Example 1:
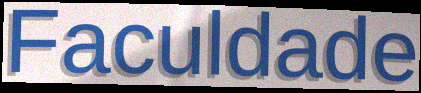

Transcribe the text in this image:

Faculdade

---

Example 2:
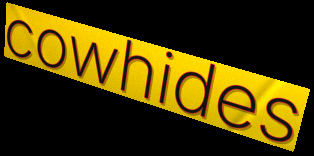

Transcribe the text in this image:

cowhides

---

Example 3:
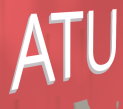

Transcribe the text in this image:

ATU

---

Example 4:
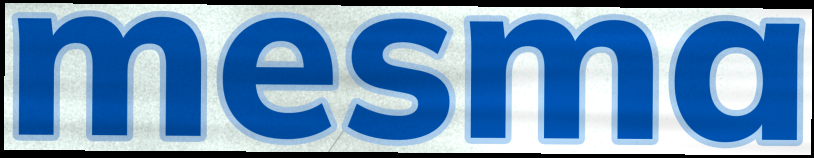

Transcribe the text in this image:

mesma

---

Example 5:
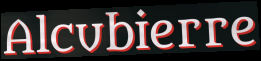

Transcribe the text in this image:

Alcubierre